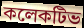
কলেকটিভ